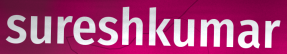
sureshkumar